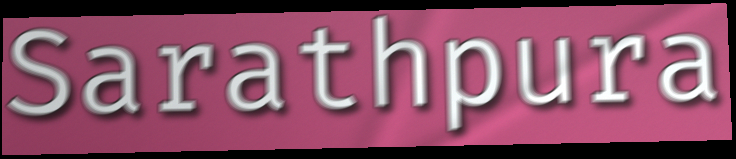
Sarathpura